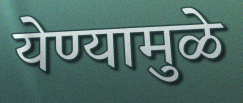
येण्यामुळे